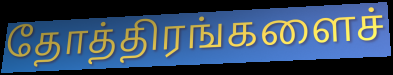
தோத்திரங்களைச்